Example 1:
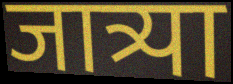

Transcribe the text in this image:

जात्र्या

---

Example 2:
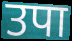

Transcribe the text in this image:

उपा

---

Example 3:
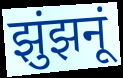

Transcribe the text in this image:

झुंझनूं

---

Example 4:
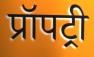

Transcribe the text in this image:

प्रॉपट्री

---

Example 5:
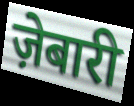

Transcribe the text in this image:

ज़ेबारी